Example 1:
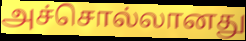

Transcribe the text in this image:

அச்சொல்லானது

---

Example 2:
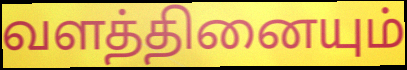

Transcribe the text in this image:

வளத்தினையும்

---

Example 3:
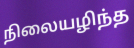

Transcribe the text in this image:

நிலையழிந்த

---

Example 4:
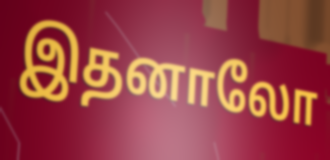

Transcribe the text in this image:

இதனாலோ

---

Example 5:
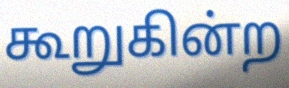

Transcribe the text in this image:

கூறுகின்ற